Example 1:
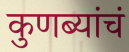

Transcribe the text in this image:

कुणब्यांचं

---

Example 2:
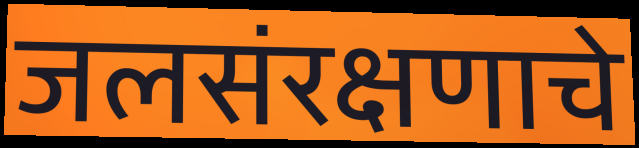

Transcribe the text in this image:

जलसंरक्षणाचे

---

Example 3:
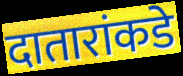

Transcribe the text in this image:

दातारांकडे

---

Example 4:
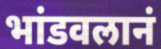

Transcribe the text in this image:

भांडवलानं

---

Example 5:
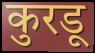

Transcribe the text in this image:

कुरडू